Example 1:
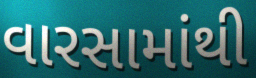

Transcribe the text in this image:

વારસામાંથી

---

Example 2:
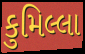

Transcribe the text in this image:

કુમિલ્લા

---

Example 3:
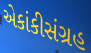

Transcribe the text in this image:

એકાંકીસંગ્રહ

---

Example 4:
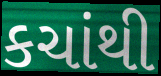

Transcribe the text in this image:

કચાંથી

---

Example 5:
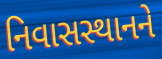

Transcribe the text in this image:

નિવાસસ્થાનને